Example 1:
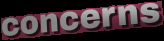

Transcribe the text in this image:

concerns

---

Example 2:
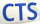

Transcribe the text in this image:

CTS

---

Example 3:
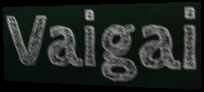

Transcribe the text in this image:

Vaigai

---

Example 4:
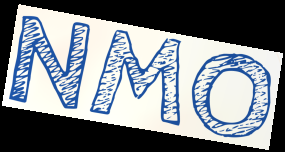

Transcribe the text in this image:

NMO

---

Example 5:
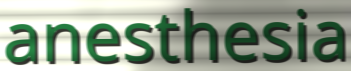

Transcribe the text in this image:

anesthesia